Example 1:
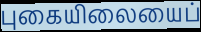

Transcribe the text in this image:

புகையிலையைப்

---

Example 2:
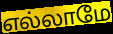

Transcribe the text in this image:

எல்லாமே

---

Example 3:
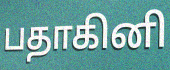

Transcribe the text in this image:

பதாகினி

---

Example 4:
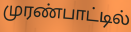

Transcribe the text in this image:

முரண்பாட்டில்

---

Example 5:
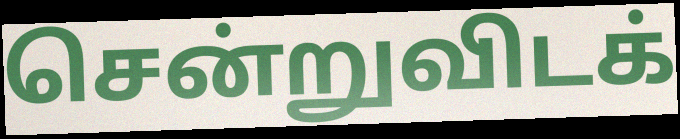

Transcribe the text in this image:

சென்றுவிடக்